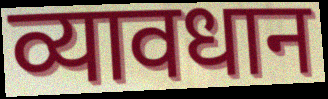
व्यावधान